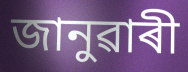
জানুৱাৰী